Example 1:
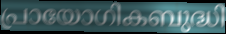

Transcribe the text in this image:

പ്രായോഗികബുദ്ധി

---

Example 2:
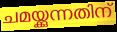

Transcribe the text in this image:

ചമയ്ക്കുന്നതിന്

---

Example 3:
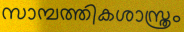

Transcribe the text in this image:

സാമ്പത്തികശാസ്ത്രം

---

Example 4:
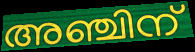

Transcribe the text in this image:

അഞ്ചിന്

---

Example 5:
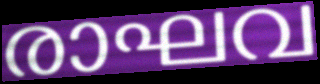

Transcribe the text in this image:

രാഘവ